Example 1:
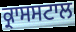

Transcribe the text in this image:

ਕ੍ਰਾਸਸਟਾਲ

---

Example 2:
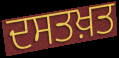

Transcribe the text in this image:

ਦਸਤਖ਼ਤ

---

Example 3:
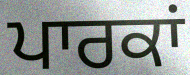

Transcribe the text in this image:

ਪਾਰਕਾਂ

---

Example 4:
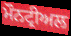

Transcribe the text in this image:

ਮੌਨਟ੍ਰੀਅਲ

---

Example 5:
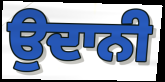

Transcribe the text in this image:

ਉਦਾਨੀ